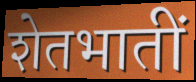
शेतभातीं